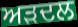
ਅੜਦਲ